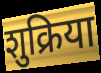
शुक्रिया